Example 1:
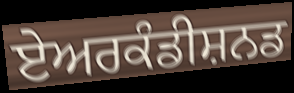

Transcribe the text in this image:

ਏਅਰਕੰਡੀਸ਼ਨਡ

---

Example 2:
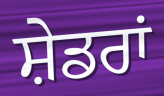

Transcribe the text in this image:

ਸ਼ੇਡਰਾਂ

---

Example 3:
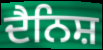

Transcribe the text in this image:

ਦੈਨਿਸ਼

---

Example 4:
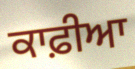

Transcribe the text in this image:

ਕਾਫ਼ੀਆ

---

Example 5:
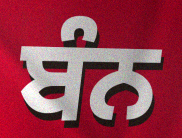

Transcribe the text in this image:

ਬੰਨ